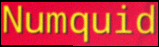
Numquid